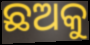
ଛଅକୁ